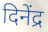
दिनेंद्र